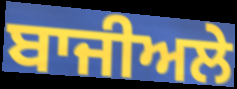
ਬਾਜੀਅਲੇ